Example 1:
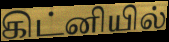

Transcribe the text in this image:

கிட்னியில்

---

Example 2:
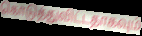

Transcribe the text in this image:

கொடுத்துவிட்டதாகவும்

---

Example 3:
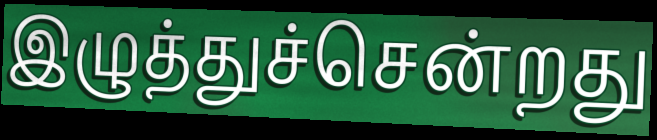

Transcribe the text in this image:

இழுத்துச்சென்றது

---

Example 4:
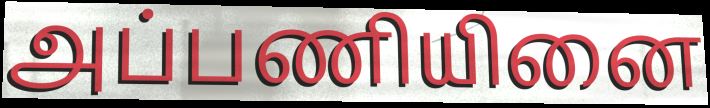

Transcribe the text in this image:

அப்பணியினை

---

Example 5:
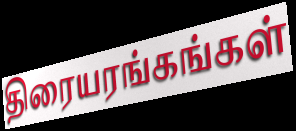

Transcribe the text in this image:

திரையரங்கங்கள்